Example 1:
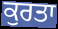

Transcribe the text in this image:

ਕੁਰਤਾ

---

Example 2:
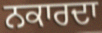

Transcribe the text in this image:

ਨਕਾਰਦਾ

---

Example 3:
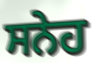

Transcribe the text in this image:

ਸਨੇਹ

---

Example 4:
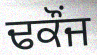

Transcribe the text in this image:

ਢਕੌਂਜ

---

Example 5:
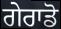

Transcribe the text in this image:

ਗੇਰਾਡੋ